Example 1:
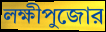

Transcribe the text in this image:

লক্ষীপুজোর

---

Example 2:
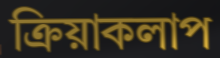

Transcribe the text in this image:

ক্রিয়াকলাপ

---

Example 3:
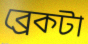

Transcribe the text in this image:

ব্রেকটা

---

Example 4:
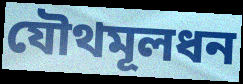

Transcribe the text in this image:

যৌথমূলধন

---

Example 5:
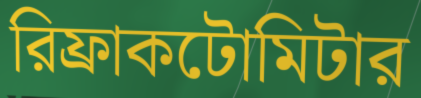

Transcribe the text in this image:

রিফ্রাকটোমিটার